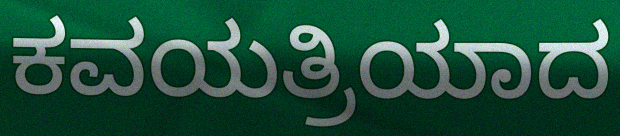
ಕವಯತ್ರಿಯಾದ